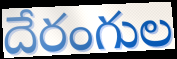
దేరంగుల